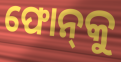
ଫୋନ୍‌କୁ